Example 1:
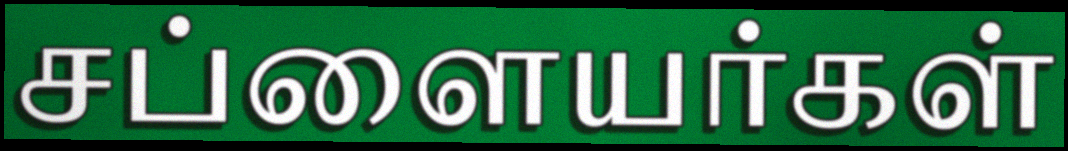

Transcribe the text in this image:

சப்ளையர்கள்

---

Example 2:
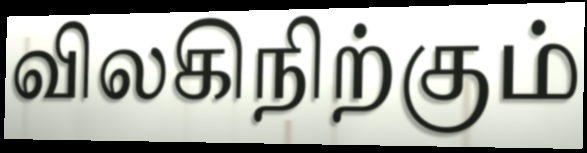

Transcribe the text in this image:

விலகிநிற்கும்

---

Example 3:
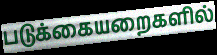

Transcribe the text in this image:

படுக்கையறைகளில்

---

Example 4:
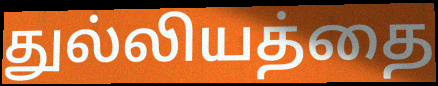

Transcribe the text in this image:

துல்லியத்தை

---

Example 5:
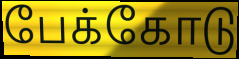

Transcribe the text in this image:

பேக்கோடு